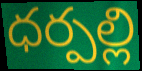
ధర్పల్లి